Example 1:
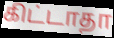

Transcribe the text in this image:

கிட்டாதா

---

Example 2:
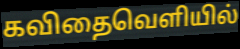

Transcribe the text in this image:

கவிதைவெளியில்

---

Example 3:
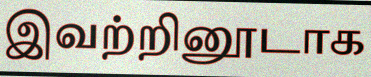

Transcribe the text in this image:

இவற்றினூடாக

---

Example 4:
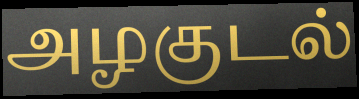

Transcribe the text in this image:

அழகுடல்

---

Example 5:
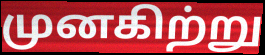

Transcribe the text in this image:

முனகிற்று